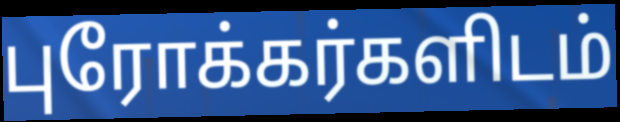
புரோக்கர்களிடம்